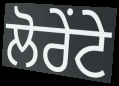
ਲੋਰੇਂਟੇ